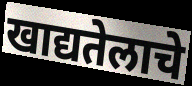
खाद्यतेलाचे